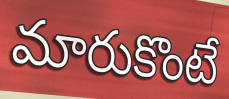
మారుకొంటే